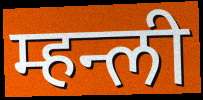
म्हन्ली